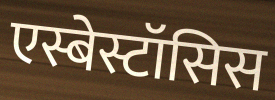
एस्बेस्टॉसिस